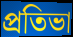
প্ৰতিভা